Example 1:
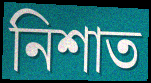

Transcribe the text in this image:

নিশাত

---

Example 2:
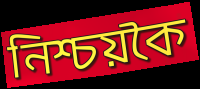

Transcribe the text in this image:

নিশ্চয়কৈ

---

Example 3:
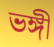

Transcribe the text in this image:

ভঙ্গী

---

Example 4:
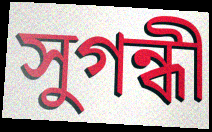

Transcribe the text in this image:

সুগন্ধী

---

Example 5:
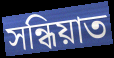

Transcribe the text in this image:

সন্ধিয়াত